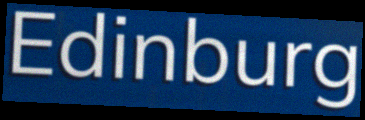
Edinburg